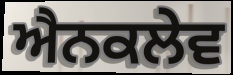
ਐਨਕਲੇਵ